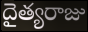
దైత్యరాజు